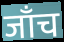
जाँच